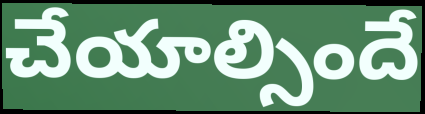
చేయాల్సిందే